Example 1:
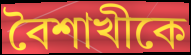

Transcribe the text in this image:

বৈশাখীকে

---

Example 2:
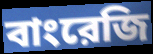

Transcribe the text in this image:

বাংরেজি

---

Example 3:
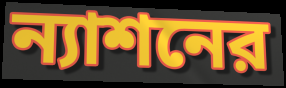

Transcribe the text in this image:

ন্যাশনের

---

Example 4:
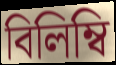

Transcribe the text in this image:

বিলিম্বি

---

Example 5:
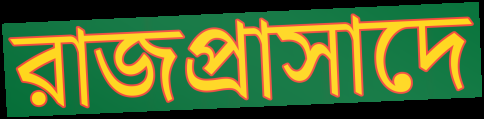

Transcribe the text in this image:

রাজপ্রাসাদে